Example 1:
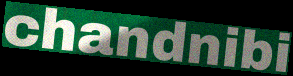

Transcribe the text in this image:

chandnibi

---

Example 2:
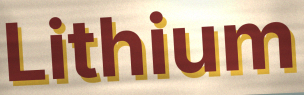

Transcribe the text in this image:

Lithium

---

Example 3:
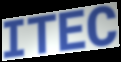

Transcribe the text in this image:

ITEC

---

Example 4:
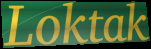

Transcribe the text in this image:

Loktak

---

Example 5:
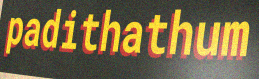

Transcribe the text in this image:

padithathum